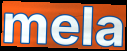
mela